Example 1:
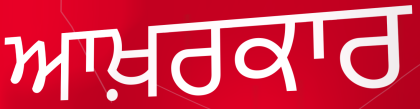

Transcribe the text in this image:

ਆਖ਼ਰਕਾਰ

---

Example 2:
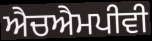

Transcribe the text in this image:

ਐਚਐਮਪੀਵੀ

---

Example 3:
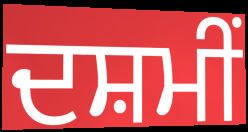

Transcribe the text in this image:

ਦਸ਼ਮੀਂ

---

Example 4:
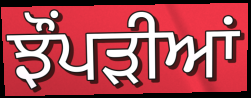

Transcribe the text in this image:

ਝੌਂਪੜੀਆਂ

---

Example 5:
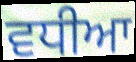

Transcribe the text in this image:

ਵਧੀਆ